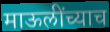
माऊलींच्याच